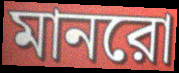
মানরো